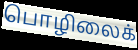
பொழிலைக்